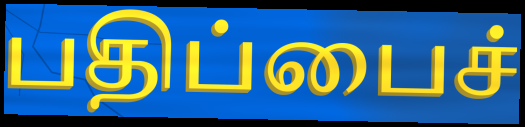
பதிப்பைச்